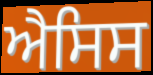
ਐਸਿਸ